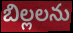
బిల్లలను